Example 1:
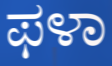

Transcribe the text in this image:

ಫಳಾ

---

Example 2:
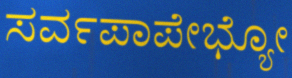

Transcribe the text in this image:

ಸರ್ವಪಾಪೇಭ್ಯೋ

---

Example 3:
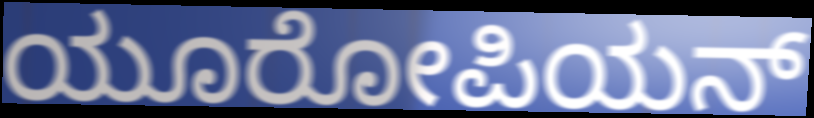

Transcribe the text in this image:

ಯೂರೋಪಿಯನ್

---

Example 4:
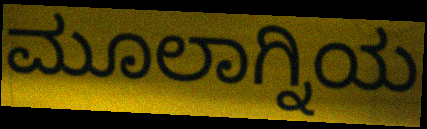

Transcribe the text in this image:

ಮೂಲಾಗ್ನಿಯ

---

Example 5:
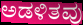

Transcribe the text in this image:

ಅಡಳಿತವು